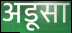
अडूसा